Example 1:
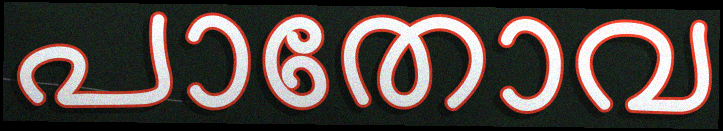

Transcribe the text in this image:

പാതോവ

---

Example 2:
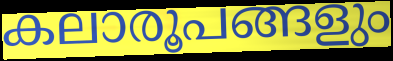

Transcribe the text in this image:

കലാരൂപങ്ങളും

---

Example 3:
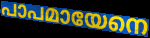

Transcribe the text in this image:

പാപമായേനെ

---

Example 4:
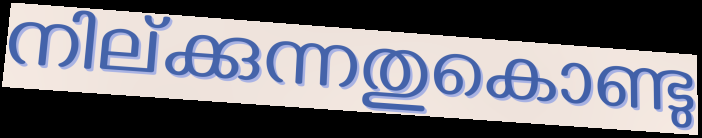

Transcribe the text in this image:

നില്ക്കുന്നതുകൊണ്ടു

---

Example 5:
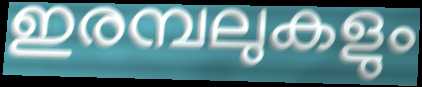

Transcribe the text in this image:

ഇരമ്പലുകളും